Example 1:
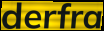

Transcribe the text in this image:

derfra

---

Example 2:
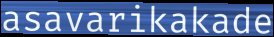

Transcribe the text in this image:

asavarikakade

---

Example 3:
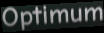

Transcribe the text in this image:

Optimum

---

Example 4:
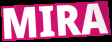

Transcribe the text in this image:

MIRA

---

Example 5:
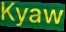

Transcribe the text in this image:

Kyaw